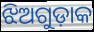
ଝିଅଗୁଡ଼ାକ